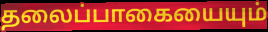
தலைப்பாகையையும்